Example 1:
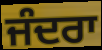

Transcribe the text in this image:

ਜੰਦਰਾ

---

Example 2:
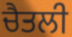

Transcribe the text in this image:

ਚੈਤਲੀ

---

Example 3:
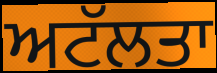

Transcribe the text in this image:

ਅਟੱਲਤਾ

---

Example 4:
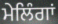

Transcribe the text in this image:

ਮੇਲਿੰਗਾਂ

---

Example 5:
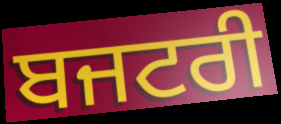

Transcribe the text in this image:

ਬਜਟਰੀ